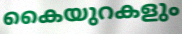
കൈയുറകളും